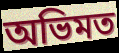
অভিমত